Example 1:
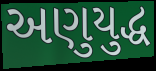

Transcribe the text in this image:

અણુયુદ્ધ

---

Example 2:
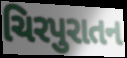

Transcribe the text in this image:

ચિરપુરાતન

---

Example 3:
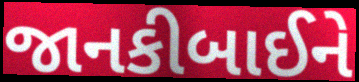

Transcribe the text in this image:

જાનકીબાઈને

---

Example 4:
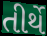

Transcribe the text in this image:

તીર્થે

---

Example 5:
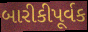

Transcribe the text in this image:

બારીકીપૂર્વક